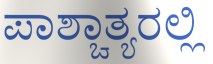
ಪಾಶ್ಚಾತ್ಯರಲ್ಲಿ